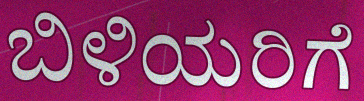
ಬಿಳಿಯರಿಗೆ